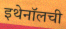
इथेनॉलची